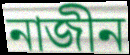
নাজীন